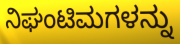
ನಿಘಂಟಿಮಗಳನ್ನು